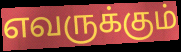
எவருக்கும்